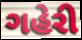
ગહેરી